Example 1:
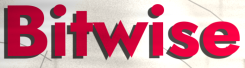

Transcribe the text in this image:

Bitwise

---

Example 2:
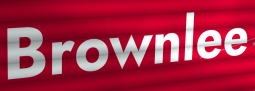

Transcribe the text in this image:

Brownlee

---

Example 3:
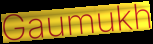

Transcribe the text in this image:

Gaumukh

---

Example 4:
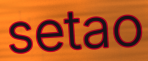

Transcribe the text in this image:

setao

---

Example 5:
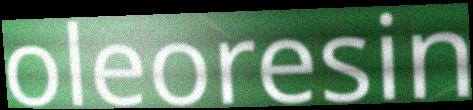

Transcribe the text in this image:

oleoresin